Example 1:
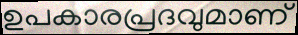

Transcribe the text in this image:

ഉപകാരപ്രദവുമാണ്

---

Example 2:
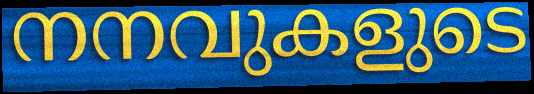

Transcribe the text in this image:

നനവുകളുടെ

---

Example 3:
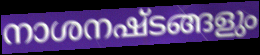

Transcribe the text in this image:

നാശനഷ്ടങ്ങളും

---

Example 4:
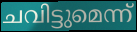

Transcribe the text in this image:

ചവിട്ടുമെന്ന്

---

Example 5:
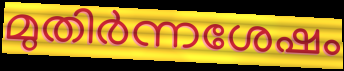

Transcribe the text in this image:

മുതിർന്നശേഷം